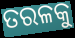
ତରଳକୁ